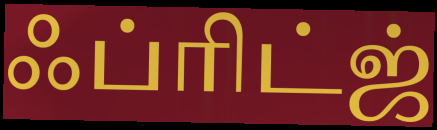
ஃப்ரிட்ஜ்